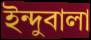
ইন্দুবালা